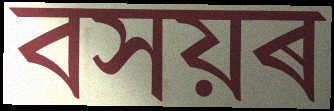
বসয়ৰ